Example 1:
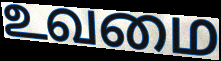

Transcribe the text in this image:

உவமை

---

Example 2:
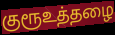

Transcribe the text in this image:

குரூஉத்தழை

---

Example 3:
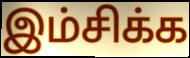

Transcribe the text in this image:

இம்சிக்க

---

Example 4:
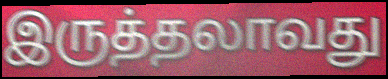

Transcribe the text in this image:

இருத்தலாவது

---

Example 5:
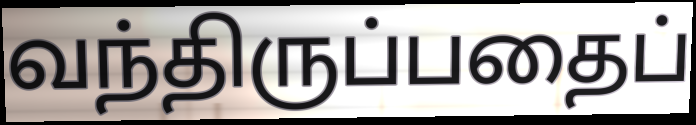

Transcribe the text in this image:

வந்திருப்பதைப்